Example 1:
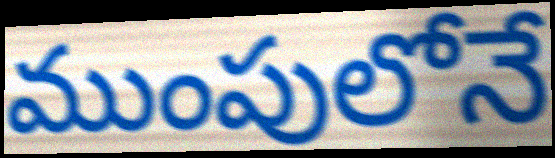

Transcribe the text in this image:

ముంపులోనే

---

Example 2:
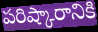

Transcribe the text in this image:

పరిష్కారానికి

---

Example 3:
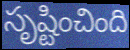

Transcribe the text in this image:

సృష్టించింది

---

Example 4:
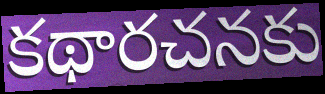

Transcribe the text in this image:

కథారచనకు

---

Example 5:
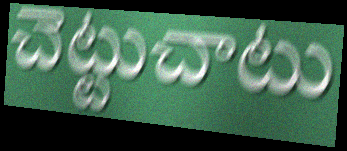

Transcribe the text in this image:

చెట్టుచాటు